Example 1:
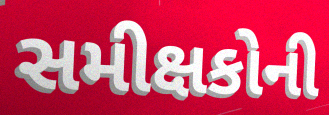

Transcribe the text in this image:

સમીક્ષકોની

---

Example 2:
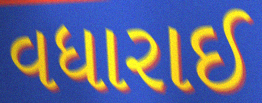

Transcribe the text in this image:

વધારાઈ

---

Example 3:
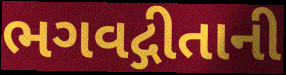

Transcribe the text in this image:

ભગવદ્ગીતાની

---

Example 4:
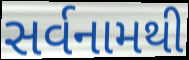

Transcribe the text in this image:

સર્વનામથી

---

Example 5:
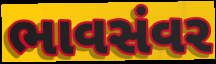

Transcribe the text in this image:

ભાવસંવર